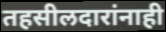
तहसीलदारांनाही